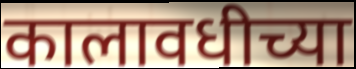
कालावधीच्या